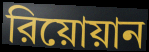
রিয়োয়ান